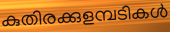
കുതിരക്കുളമ്പടികൾ